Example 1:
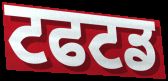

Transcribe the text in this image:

ਟਫਟਡ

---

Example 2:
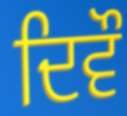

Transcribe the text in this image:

ਦਿਵੌ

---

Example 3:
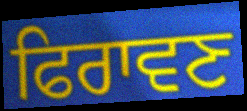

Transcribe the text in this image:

ਫਿਰਾਵਣ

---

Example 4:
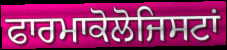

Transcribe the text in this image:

ਫਾਰਮਾਕੋਲੋਜਿਸਟਾਂ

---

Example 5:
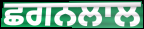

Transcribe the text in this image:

ਛਗਨਲਾਲ